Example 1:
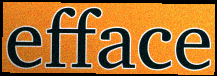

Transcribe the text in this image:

efface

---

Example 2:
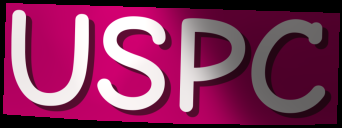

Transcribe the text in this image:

USPC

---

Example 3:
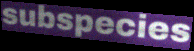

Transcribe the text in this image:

subspecies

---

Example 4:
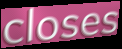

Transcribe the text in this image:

closes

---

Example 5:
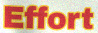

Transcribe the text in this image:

Effort